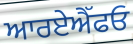
ਆਰਏਐੱਫਓ